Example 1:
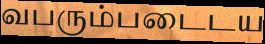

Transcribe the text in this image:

வபரும்படைடய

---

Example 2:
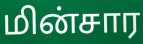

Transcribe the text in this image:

மின்சார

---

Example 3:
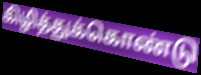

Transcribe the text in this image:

கிழித்துக்கொண்டு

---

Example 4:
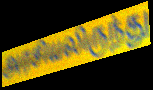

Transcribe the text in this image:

அரசியலிருந்து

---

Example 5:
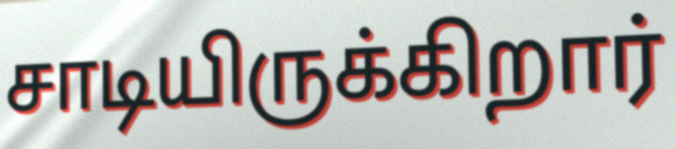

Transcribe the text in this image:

சாடியிருக்கிறார்